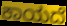
ಕಾಯದೆ